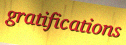
gratifications